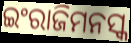
ଇଂରାଜିମନସ୍କ